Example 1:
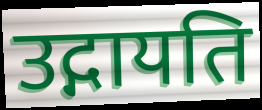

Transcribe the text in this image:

उद्गायति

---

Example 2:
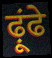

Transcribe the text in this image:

ढ़ूंढे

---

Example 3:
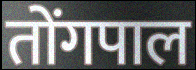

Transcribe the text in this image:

तोंगपाल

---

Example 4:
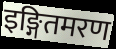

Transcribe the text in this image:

इङ्गितमरण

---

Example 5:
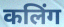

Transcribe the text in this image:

कलिंग